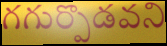
గగుర్పొడవని